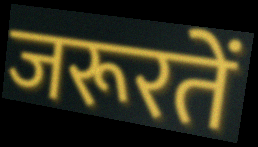
जरूरतें